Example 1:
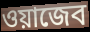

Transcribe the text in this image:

ওয়াজেব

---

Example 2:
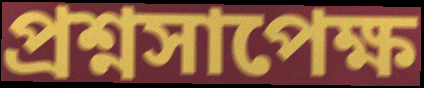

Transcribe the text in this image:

প্রশ্নসাপেক্ষ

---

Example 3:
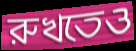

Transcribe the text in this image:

রুখতেও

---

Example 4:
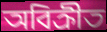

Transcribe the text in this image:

অবিক্রীত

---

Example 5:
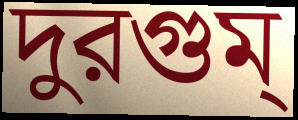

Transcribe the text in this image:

দুরগুম্